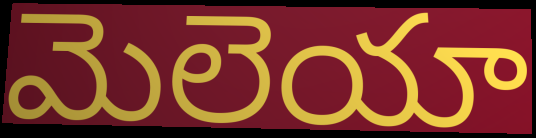
మెలెయా